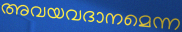
അവയവദാനമെന്ന